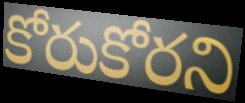
కోరుకోరని